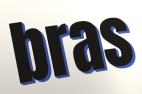
bras